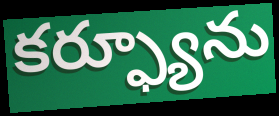
కర్ఫ్యూను